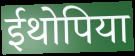
ईथोपिया